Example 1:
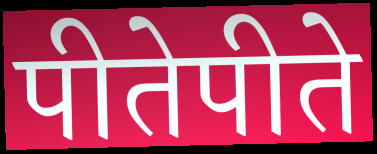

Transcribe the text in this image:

पीतेपीते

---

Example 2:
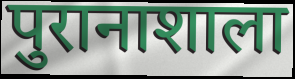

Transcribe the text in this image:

पुरानाशाला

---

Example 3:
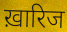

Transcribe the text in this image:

ख़ारिज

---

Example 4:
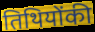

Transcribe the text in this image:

तिथियोंकी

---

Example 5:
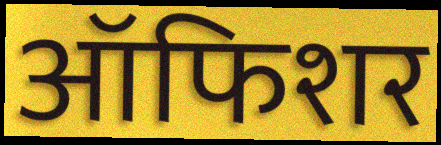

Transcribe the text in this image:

ऑफिशर